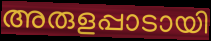
അരുളപ്പാടായി